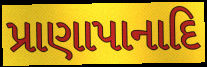
પ્રાણાપાનાદિ